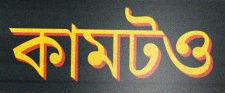
কামটও